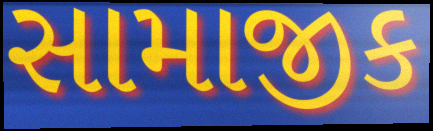
સામાજીક